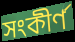
সংকীৰ্ণ